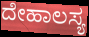
ದೇಹಾಲಸ್ಯ